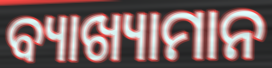
ବ୍ୟାଖ୍ୟାମାନ